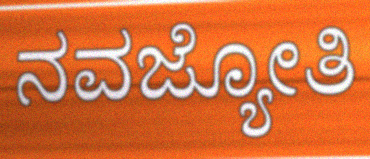
ನವಜ್ಯೋತಿ